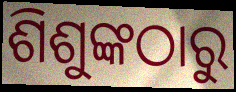
ଶିଶୁଙ୍କଠାରୁ